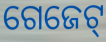
ଗେଜେଟ୍